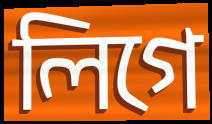
লিগে